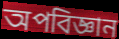
অপবিজ্ঞান